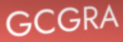
GCGRA